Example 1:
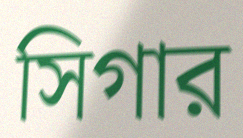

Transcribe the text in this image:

সিগার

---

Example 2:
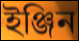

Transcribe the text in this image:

ইঞ্জিন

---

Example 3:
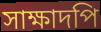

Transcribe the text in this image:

সাক্ষাদপি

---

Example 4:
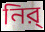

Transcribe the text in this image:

নির্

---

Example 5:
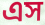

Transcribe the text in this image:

এস